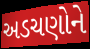
અડચણોને